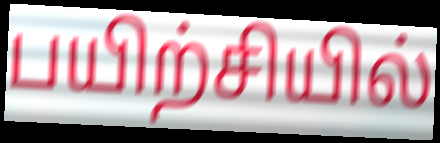
பயிற்சியில்